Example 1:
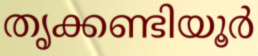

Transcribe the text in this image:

തൃക്കണ്ടിയൂർ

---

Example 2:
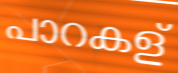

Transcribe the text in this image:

പാറകള്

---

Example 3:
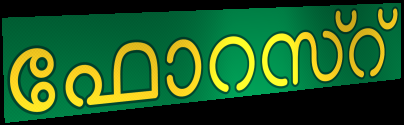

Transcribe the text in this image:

ഫോറസ്റ്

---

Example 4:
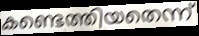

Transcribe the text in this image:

കണ്ടെത്തിയതെന്ന്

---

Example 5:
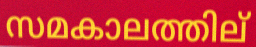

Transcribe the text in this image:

സമകാലത്തില്